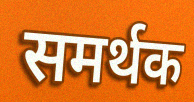
समर्थक